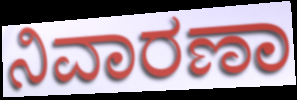
ನಿವಾರಣಾ